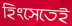
হিংসেতেই